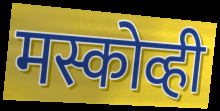
मस्कोव्ही